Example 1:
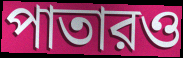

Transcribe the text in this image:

পাতারও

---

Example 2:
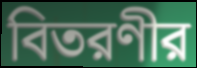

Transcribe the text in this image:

বিতরণীর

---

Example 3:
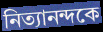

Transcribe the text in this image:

নিত্যানন্দকে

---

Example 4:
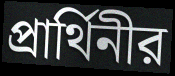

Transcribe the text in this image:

প্রার্থিনীর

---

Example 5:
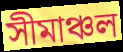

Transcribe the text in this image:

সীমাঞ্চল